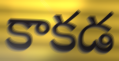
కాకడ